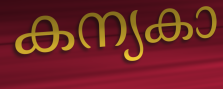
കന്യകാ